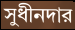
সুধীনদার